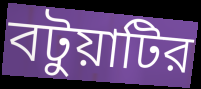
বটুয়াটির